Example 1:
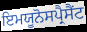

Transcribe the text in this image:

ਇਮਯੂਨੋਸਪ੍ਰੈਸੈਂਟ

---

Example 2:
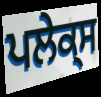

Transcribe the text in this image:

ਪਲੇਕ੍ਸ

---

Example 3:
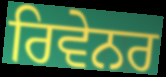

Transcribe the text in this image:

ਰਿਵੇਨਰ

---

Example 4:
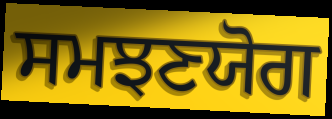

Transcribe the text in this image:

ਸਮਝਣਯੋਗ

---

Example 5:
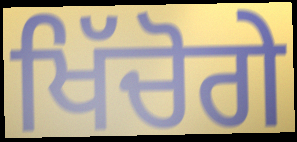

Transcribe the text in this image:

ਖਿੱਚੋਗੇ